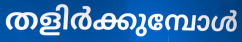
തളിർക്കുമ്പോൾ